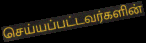
செய்யப்பட்டவர்களின்